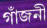
গাঁজনী